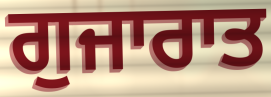
ਗੁਜਾਰਾਤ